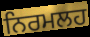
ਨਿਰਮਲਹ